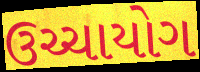
ઉચ્ચાયોગ